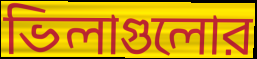
ভিলাগুলোর